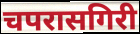
चपरासगिरी